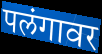
पलंगावर